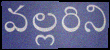
వల్లరిని